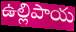
ఉల్లిపాయ